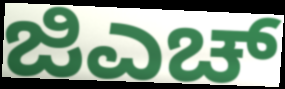
ಜಿಎಚ್